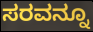
ಸರವನ್ನೂ